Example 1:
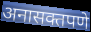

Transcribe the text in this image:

अनासक्तपणे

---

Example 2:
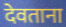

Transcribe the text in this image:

देवताना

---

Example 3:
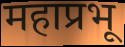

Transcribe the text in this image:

महाप्रभू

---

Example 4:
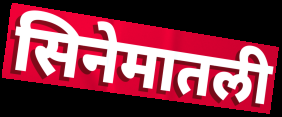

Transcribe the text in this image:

सिनेमातली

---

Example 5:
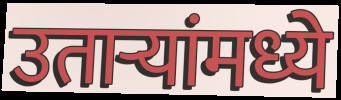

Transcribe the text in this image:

उतार्‍यांमध्ये